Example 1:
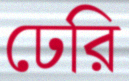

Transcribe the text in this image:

ঢেরি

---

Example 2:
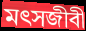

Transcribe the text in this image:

মৎসজীবী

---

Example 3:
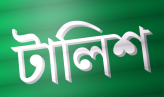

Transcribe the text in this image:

টালিশ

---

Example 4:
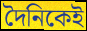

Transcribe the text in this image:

দৈনিকেই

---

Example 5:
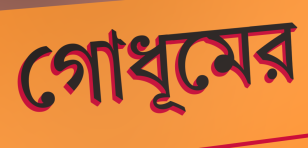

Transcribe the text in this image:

গোধূমের